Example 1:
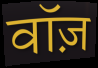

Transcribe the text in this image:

वॉज़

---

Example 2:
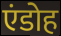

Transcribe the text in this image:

एंडोह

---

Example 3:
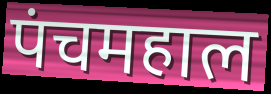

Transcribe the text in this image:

पंचमहाल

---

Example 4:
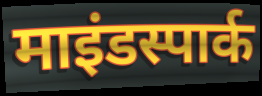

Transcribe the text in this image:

माइंडस्पार्क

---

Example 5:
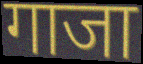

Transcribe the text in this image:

गाजा